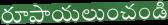
రూపాయలుంచండి